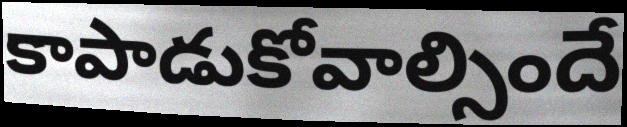
కాపాడుకోవాల్సిందే